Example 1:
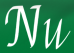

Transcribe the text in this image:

Nu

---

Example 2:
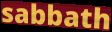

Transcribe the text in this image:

sabbath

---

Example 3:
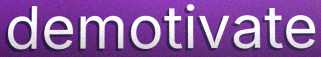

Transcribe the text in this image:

demotivate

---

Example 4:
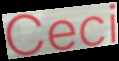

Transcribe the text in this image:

Ceci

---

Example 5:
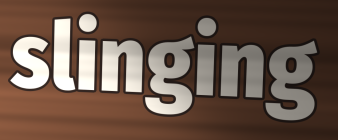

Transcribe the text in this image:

slinging